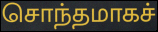
சொந்தமாகச்